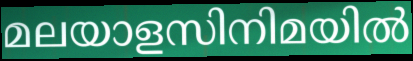
മലയാളസിനിമയിൽ